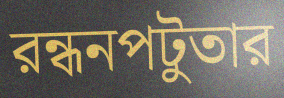
রন্ধনপটুতার